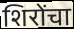
शिरोंचा